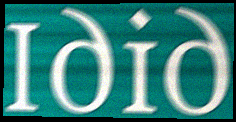
Idid